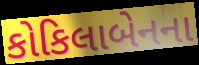
કોકિલાબેનના